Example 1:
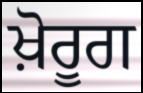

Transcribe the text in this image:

ਖ਼ੋਰੂਗ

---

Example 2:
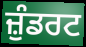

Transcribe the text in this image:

ਜ਼ੁੰਡਰਟ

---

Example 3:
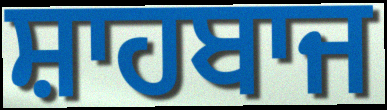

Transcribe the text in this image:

ਸ਼ਾਹਬਾਜ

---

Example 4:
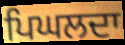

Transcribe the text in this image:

ਪਿਘਲਦਾ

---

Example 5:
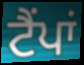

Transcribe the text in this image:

ਟੈਂਪਾਂ